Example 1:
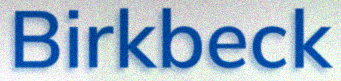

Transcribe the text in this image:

Birkbeck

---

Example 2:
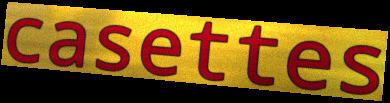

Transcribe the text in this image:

casettes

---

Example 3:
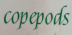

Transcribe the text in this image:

copepods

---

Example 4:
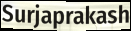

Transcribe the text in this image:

Surjaprakash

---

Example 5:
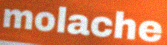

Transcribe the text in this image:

molache